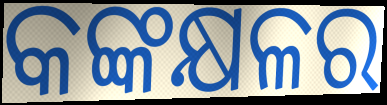
କଙ୍କକ୍ଷଳର